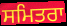
ਸਮਿਤਰਾ